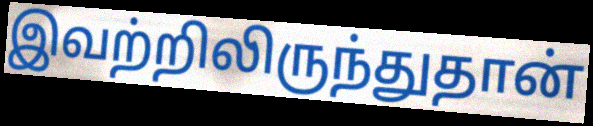
இவற்றிலிருந்துதான்